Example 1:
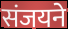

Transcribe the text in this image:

संजयने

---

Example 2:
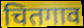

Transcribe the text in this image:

चितगाव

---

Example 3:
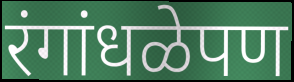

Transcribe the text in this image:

रंगांधळेपण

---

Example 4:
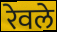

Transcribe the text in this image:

रेवले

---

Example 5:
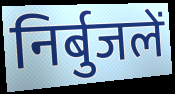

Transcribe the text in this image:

निर्बुजलें